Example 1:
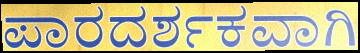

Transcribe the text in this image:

ಪಾರದರ್ಶಕವಾಗಿ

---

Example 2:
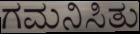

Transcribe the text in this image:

ಗಮನಿಸಿತು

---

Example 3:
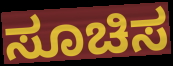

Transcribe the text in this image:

ಸೂಚಿಸ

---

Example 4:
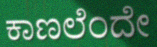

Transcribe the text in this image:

ಕಾಣಲೆಂದೇ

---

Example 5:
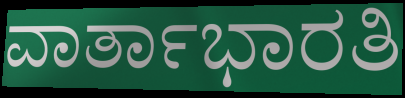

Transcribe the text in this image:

ವಾರ್ತಾಭಾರತಿ